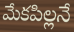
మేకపిల్లనే